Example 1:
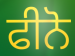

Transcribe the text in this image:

ਫੀਨੋ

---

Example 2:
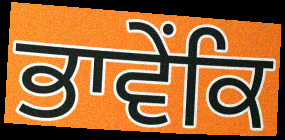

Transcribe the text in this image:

ਭਾਵੇਂਕਿ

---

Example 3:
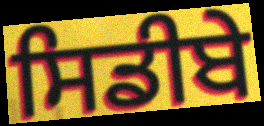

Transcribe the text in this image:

ਸਿਡੀਬੇ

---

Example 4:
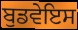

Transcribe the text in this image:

ਬੁਡਵੇਇਸ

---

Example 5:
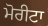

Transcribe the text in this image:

ਮੋਰੀਟਾ